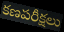
కణపరీక్షలు